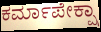
ಕರ್ಮಾಪೇಕ್ಷಾ